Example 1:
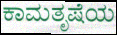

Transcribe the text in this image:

ಕಾಮತೃಷೆಯ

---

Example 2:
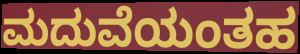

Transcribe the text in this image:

ಮದುವೆಯಂತಹ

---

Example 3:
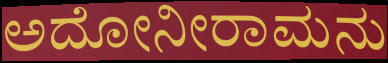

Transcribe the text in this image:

ಅದೋನೀರಾಮನು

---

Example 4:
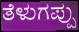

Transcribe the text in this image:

ತೆಳುಗಪ್ಪು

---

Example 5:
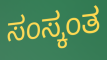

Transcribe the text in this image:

ಸಂಸ್ಕಂತ